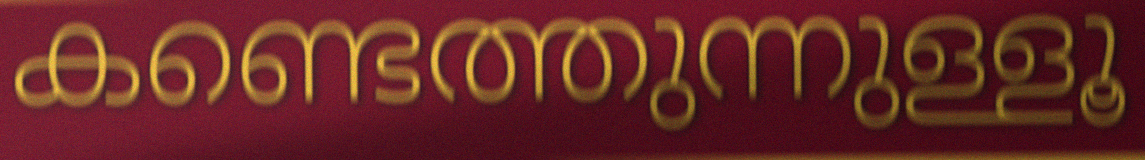
കണ്ടെത്തുന്നുള്ളൂ